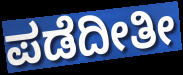
ಪಡೆದೀತೀ